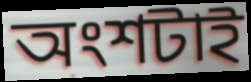
অংশটাই